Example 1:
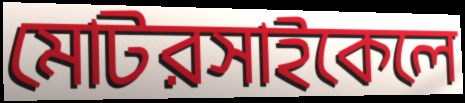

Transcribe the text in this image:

মোটরসাইকেলে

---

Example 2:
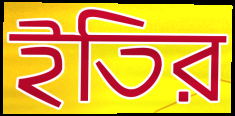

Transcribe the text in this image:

ইতির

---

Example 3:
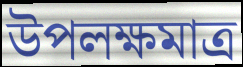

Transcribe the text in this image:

উপলক্ষমাত্র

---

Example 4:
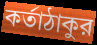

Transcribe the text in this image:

কর্তাঠাকুর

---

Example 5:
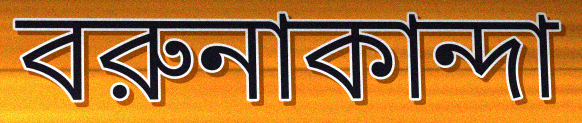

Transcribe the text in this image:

বরুনাকান্দা